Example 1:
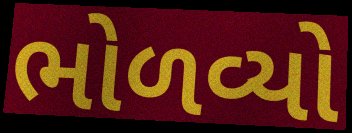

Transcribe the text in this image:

ભોળવ્યો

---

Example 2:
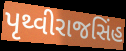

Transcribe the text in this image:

પૃથ્વીરાજસિંહ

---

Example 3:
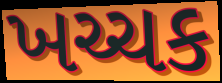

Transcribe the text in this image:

ખચ્ચક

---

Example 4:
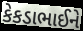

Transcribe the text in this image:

કેકડાભાઈને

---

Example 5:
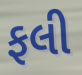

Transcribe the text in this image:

ફલી